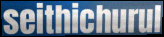
seithichurul